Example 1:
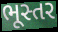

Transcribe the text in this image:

ભૂસ્તર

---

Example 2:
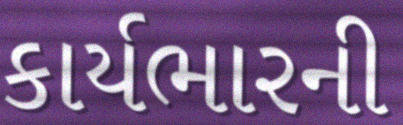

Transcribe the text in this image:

કાર્યભારની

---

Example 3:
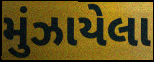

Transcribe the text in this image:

મુંઝાયેલા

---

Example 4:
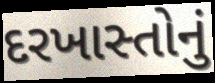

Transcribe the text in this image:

દરખાસ્તોનું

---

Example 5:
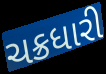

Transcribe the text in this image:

ચક્રધારી